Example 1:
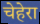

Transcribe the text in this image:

चेहेरा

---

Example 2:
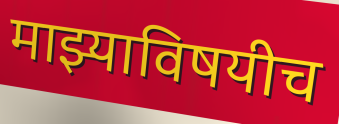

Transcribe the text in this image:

माझ्याविषयीच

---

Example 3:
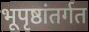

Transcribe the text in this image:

भूपृष्ठांतर्गत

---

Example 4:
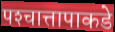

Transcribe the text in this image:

पश्चात्तापाकडे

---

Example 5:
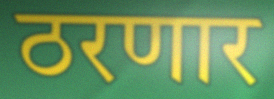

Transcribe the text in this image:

ठरणार